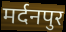
मर्दनपुर